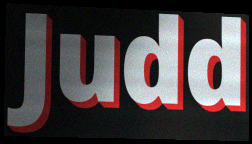
Judd